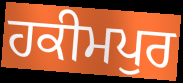
ਹਕੀਮਪੁਰ